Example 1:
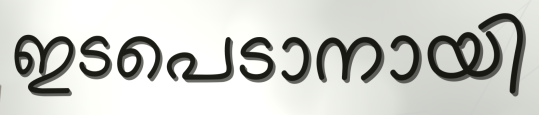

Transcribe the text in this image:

ഇടപെടാനായി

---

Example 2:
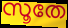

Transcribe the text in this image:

സൂതേ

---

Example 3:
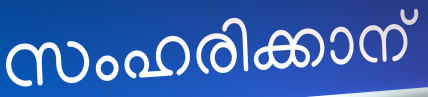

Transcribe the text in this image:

സംഹരിക്കാന്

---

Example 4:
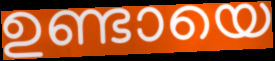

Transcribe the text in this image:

ഉണ്ടായെ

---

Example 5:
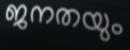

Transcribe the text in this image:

ജനതയും